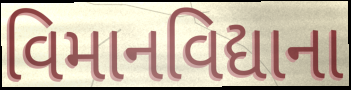
વિમાનવિદ્યાના